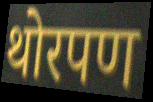
थोरपण